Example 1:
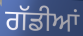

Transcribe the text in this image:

ਗੱਡੀਆਂ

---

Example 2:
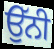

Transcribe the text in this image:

ਉੱਨੀ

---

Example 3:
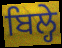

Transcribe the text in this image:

ਬਿਲ੍ਹੇ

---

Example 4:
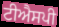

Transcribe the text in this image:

ਟੀਐਸਪੀ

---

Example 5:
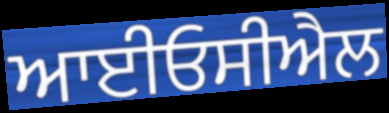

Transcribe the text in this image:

ਆਈਓਸੀਐਲ